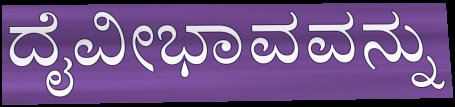
ದೈವೀಭಾವವನ್ನು